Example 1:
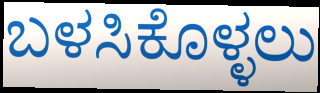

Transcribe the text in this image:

ಬಳಸಿಕೊಳ್ಳಲು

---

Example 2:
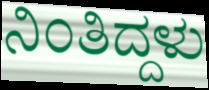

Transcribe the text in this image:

ನಿಂತಿದ್ದಳು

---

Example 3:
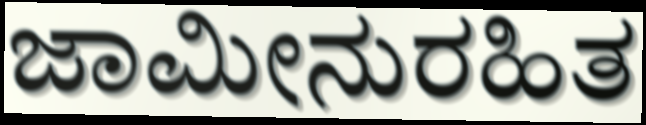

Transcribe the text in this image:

ಜಾಮೀನುರಹಿತ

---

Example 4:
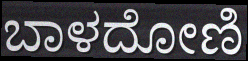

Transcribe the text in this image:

ಬಾಳದೋಣಿ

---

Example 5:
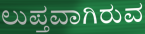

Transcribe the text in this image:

ಲುಪ್ತವಾಗಿರುವ